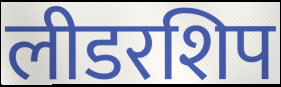
लीडरशिप